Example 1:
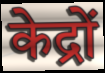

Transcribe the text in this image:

केद्रों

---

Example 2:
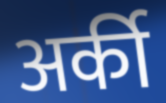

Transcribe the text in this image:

अर्की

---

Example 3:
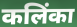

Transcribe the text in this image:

कलिंका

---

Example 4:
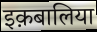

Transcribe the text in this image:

इक़बालिया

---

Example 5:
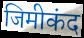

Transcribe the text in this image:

जिमीकंद